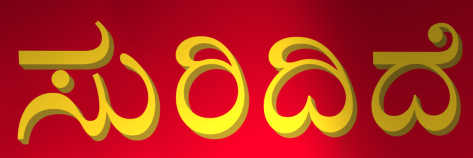
ಸುರಿದಿದೆ